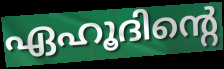
ഏഹൂദിന്റെ